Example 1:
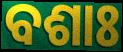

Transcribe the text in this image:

ବଶାଃ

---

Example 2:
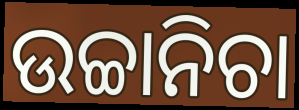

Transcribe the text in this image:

ଉଚ୍ଚାନିଚା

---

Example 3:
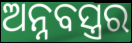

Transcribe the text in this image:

ଅନ୍ନବସ୍ତ୍ରର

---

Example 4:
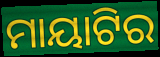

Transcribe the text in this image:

ମାୟାଟିର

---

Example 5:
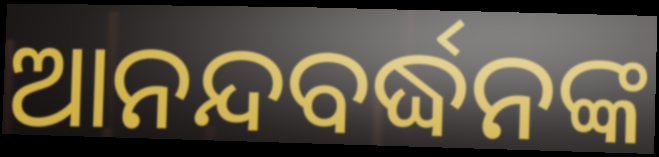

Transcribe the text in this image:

ଆନନ୍ଦବର୍ଦ୍ଧନଙ୍କ